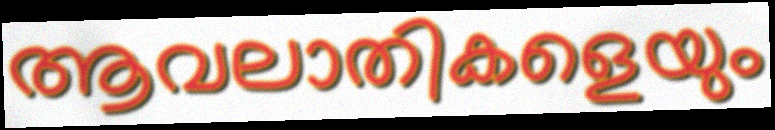
ആവലാതികളെയും